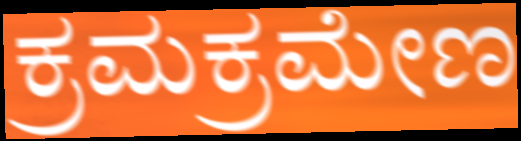
ಕ್ರಮಕ್ರಮೇಣ